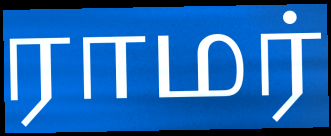
ராமர்